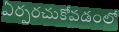
ఏర్పరచుకోవడంలో